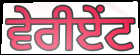
ਵੇਰੀਏਂਟ